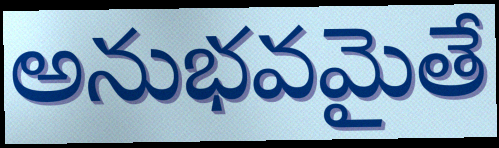
అనుభవమైతే